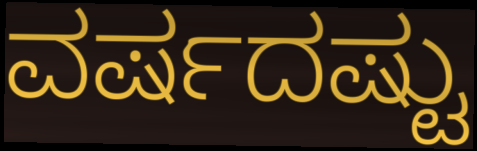
ವರ್ಷದಷ್ಟು